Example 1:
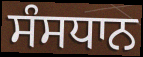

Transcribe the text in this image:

ਸੰਸਧਾਨ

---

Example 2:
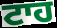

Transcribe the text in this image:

ਟਾਹ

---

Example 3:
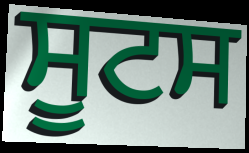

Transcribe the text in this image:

ਸੂਟਸ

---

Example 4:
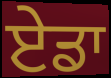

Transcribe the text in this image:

ਏਡਾ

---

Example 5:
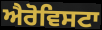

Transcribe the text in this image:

ਐਰੋਵਿਸਟਾ